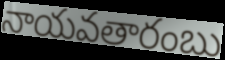
నాయవతారంబు